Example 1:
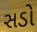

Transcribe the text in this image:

સડો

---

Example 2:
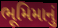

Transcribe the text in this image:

ભૂમિમાનું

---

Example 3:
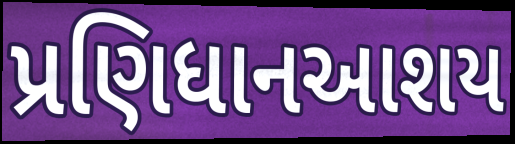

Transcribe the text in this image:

પ્રણિધાનઆશય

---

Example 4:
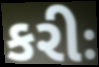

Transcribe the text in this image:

કરીઃ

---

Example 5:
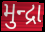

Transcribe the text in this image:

મુન્દ્રા